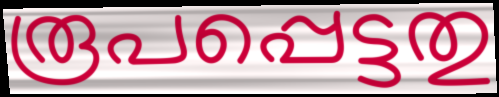
രൂപപ്പെട്ടതു